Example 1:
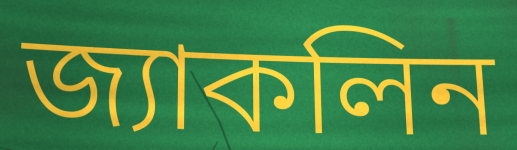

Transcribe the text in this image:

জ্যাকলিন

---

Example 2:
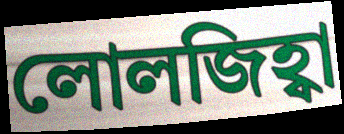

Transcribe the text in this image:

লোলজিহ্বা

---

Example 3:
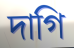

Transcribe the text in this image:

দাগি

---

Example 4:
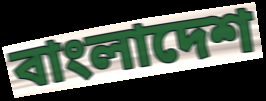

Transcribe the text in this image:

বাংলাদেশ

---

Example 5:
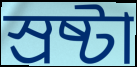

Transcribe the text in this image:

স্রষ্টা